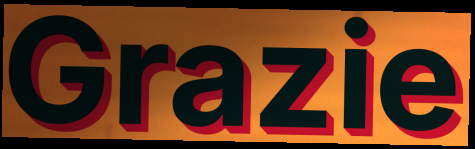
Grazie